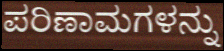
ಪರಿಣಾಮಗಳನ್ನು